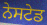
ਨੇਸਟੇਡ